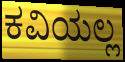
ಕವಿಯಲ್ಲ